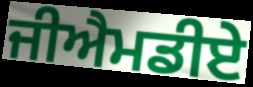
ਜੀਐਮਡੀਏ